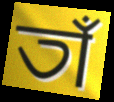
তাঁ